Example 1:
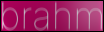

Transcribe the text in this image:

brahm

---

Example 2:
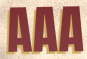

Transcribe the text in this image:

AAA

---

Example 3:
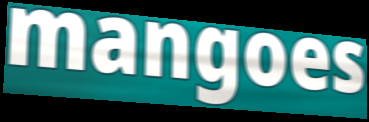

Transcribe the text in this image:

mangoes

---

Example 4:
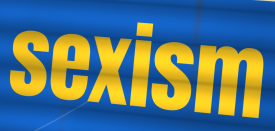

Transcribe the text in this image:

sexism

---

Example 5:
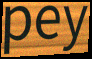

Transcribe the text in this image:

pey